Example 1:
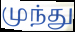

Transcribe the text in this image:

முந்து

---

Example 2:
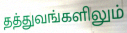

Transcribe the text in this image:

தத்துவங்களிலும்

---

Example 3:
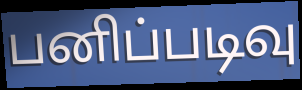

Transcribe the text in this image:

பனிப்படிவு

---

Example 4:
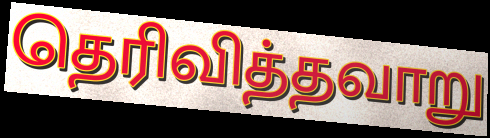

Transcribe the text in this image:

தெரிவித்தவாறு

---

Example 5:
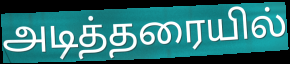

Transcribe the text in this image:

அடித்தரையில்